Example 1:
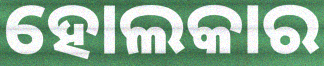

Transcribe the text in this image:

ହୋଲକାର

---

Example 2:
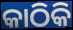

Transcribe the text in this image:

କାଠିକି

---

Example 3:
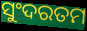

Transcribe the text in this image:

ସୁଂଦରତମ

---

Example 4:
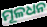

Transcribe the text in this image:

ମୂଳଧନ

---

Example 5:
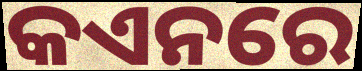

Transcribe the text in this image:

କଏନରେ